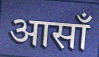
आसाँ